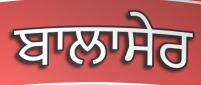
ਬਾਲਾਸੇਰ